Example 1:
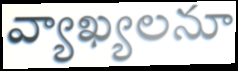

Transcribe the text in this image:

వ్యాఖ్యలనూ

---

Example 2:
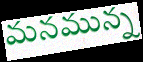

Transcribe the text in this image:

మనమున్న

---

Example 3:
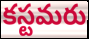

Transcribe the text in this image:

కస్టమరు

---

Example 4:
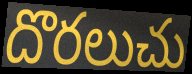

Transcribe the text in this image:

దొరలుచు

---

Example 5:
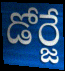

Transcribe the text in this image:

డోర్జే